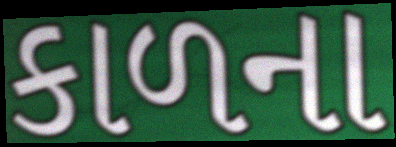
કાળના